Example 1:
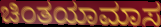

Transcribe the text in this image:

ಚಿಂತಯಾಮಾಸ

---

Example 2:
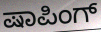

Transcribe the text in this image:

ಷಾಪಿಂಗ್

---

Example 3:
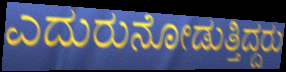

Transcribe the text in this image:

ಎದುರುನೋಡುತ್ತಿದ್ದರು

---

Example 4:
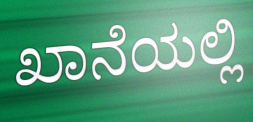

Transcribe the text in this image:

ಖಾನೆಯಲ್ಲಿ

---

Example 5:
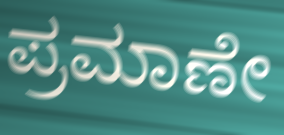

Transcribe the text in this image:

ಪ್ರಮಾಣೇ